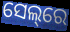
ସେଲ୍‌ରେ